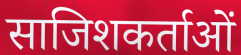
साजिशकर्ताओं